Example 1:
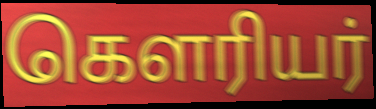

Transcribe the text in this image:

கௌரியர்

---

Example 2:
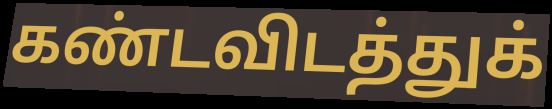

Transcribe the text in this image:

கண்டவிடத்துக்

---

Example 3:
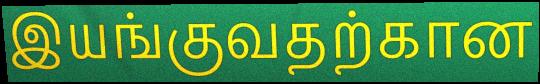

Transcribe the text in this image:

இயங்குவதற்கான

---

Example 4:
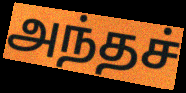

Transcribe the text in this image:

அந்தச்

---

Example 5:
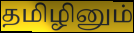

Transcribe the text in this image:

தமிழினும்